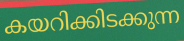
കയറിക്കിടക്കുന്ന